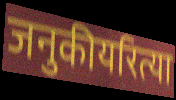
जनुकीयरित्या